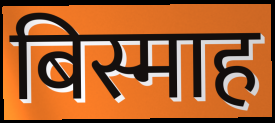
बिस्माह